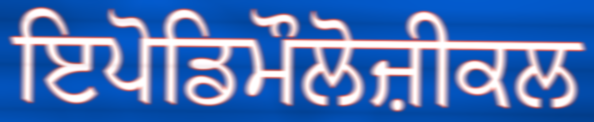
ਇਪੋਡਿਮੌਲੋਜ਼ੀਕਲ